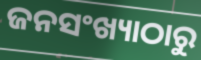
ଜନସଂଖ୍ୟାଠାରୁ